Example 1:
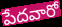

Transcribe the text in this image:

పేదవారో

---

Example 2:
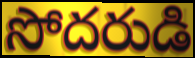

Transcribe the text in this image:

సోదరుడి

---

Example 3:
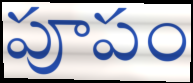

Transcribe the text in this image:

పూపం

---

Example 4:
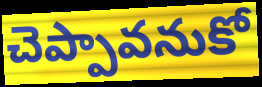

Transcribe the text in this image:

చెప్పావనుకో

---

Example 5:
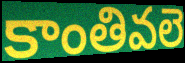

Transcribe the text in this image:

కాంతివలె